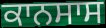
ਕਾਨਸਾਸ